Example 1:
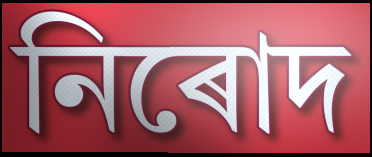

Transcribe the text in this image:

নিৰোদ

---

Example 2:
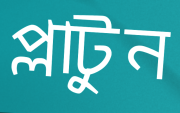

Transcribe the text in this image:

প্লাটুন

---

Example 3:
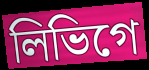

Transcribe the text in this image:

লিভিগে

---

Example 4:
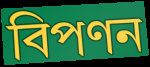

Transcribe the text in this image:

বিপণন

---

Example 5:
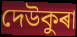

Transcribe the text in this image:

দেউকুৰা